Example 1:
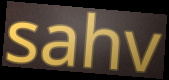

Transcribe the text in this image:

sahv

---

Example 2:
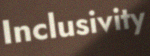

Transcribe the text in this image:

Inclusivity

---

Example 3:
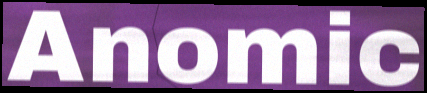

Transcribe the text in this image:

Anomic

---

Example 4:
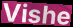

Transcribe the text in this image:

Vishe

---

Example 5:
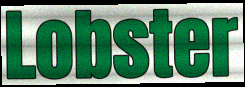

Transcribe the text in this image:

Lobster